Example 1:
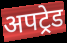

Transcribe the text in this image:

अपट्रेड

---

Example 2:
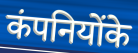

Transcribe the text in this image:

कंपनियोंके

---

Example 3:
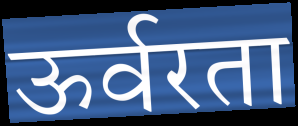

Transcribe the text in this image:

ऊर्वरता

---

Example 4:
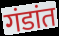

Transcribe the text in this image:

गंडांत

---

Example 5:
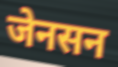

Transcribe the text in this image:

जेनसन